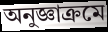
অনুজ্ঞাক্রমে